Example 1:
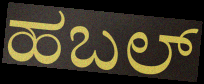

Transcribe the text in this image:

ಹಬಲ್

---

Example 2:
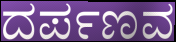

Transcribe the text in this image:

ದರ್ಪಣವ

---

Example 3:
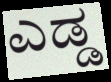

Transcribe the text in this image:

ಎಡ್ಡ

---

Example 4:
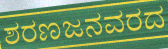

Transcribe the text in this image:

ಶರಣಜನವರದ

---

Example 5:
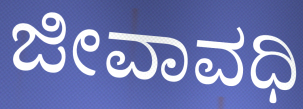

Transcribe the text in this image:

ಜೀವಾವಧಿ